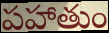
పహాతుం